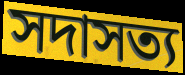
সদাসত্য